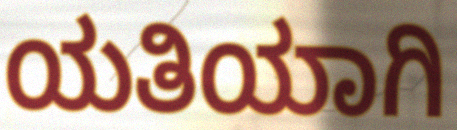
ಯತಿಯಾಗಿ